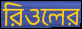
রিওলের